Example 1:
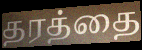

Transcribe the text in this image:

தரத்தை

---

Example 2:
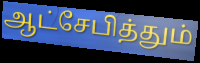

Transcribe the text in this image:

ஆட்சேபித்தும்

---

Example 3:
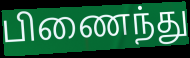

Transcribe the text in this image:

பிணைந்து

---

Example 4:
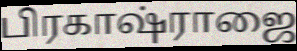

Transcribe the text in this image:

பிரகாஷ்ராஜை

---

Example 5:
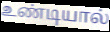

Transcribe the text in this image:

உண்டியால்